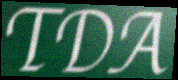
TDA